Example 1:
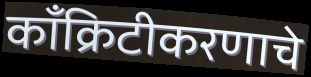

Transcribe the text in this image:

काँक्रिटीकरणाचे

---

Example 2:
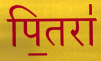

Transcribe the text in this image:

पि॒तरा॑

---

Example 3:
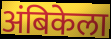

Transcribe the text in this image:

अंबिकेला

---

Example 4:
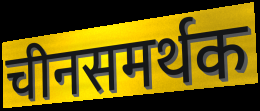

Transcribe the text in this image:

चीनसमर्थक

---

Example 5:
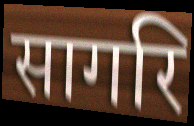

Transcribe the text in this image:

सागरि